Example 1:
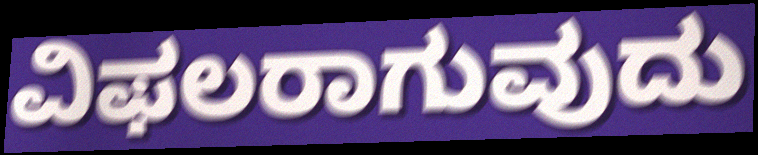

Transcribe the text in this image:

ವಿಫಲರಾಗುವುದು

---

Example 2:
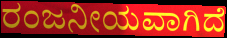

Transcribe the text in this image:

ರಂಜನೀಯವಾಗಿದೆ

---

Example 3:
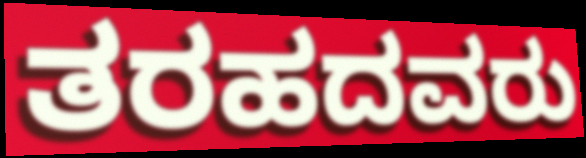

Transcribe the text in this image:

ತರಹದವರು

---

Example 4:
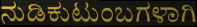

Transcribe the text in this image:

ನುಡಿಕುಟುಂಬಗಳಾಗಿ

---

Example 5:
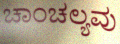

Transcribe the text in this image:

ಚಾಂಚಲ್ಯವು